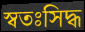
স্বতঃসিদ্ধ